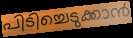
പിടിച്ചെടുക്കാൻ